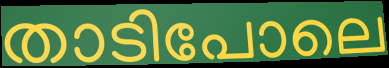
താടിപോലെ